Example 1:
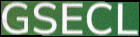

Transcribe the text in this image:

GSECL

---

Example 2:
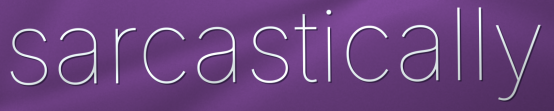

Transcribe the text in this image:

sarcastically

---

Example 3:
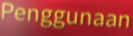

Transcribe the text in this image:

Penggunaan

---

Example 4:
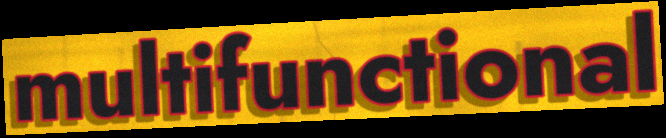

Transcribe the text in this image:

multifunctional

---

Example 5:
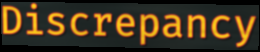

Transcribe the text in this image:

Discrepancy